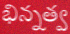
భిన్నత్వ